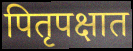
पितृपक्षात